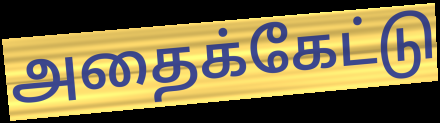
அதைக்கேட்டு